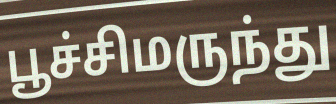
பூச்சிமருந்து